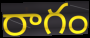
రాగం